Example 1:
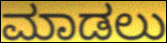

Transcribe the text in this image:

ಮಾಡಲು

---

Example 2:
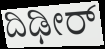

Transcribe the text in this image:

ದಿಢೀರ್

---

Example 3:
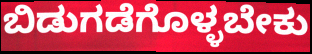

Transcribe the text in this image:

ಬಿಡುಗಡೆಗೊಳ್ಳಬೇಕು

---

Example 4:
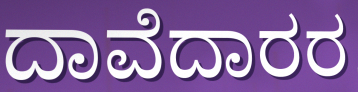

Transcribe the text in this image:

ದಾವೆದಾರರ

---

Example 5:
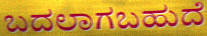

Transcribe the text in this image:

ಬದಲಾಗಬಹುದೆ